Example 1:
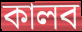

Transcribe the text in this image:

কালব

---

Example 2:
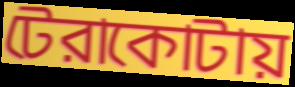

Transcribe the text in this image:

টেরাকোটায়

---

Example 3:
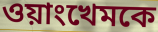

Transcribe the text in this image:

ওয়াংখেমকে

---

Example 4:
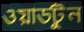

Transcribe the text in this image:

ওয়ার্ডটুন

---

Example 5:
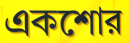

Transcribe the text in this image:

একশোর